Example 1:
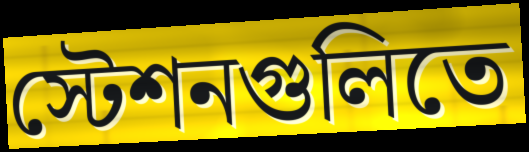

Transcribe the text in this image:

স্টেশনগুলিতে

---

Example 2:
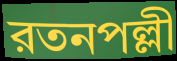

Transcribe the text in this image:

রতনপল্লী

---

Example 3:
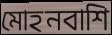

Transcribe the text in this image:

মোহনবাশি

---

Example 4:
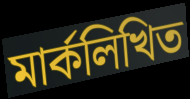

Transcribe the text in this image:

মার্কলিখিত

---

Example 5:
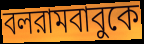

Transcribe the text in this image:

বলরামবাবুকে